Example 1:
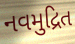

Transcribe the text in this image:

નવમુદ્રિત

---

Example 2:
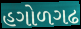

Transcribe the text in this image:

હગોળગઢ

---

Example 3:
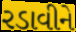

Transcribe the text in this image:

રડાવીને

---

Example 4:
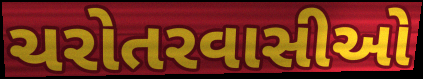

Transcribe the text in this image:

ચરોતરવાસીઓ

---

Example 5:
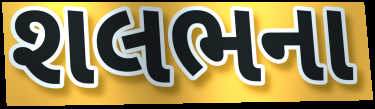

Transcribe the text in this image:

શલભના